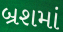
બ્રશમાં